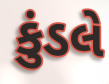
કુંડલે